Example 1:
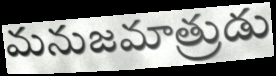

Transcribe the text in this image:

మనుజమాత్రుడు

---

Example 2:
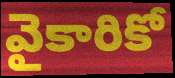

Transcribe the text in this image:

వైకారికో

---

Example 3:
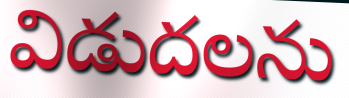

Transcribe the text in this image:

విడుదలను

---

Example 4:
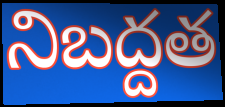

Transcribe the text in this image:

నిబద్దత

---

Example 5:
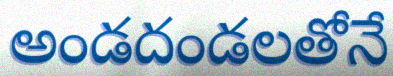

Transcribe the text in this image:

అండదండలతోనే